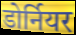
डोर्नियर